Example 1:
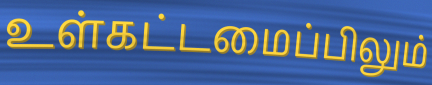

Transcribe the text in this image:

உள்கட்டமைப்பிலும்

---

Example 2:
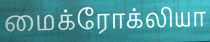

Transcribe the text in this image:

மைக்ரோக்லியா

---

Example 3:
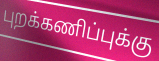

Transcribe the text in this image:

புறக்கணிப்புக்கு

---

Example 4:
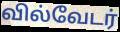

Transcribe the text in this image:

வில்வேடர்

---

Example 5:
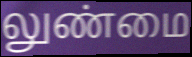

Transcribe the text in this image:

லுண்மை